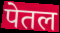
पेतल